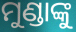
ମୁଣ୍ଡାଙ୍କୁ